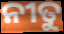
ନୀତୁ